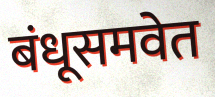
बंधूसमवेत